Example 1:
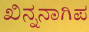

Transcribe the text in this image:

ಖಿನ್ನನಾಗಿಪ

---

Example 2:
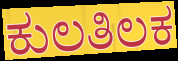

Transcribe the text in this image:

ಕುಲತಿಲಕ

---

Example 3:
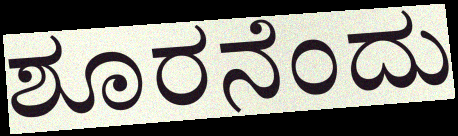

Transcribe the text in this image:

ಶೂರನೆಂದು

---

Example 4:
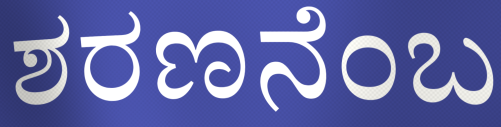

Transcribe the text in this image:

ಶರಣನೆಂಬ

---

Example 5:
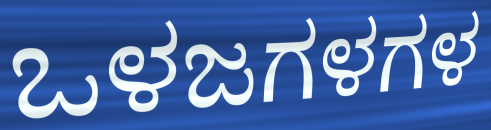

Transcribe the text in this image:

ಒಳಜಗಳಗಳ